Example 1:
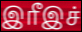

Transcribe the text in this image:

இரீஇச்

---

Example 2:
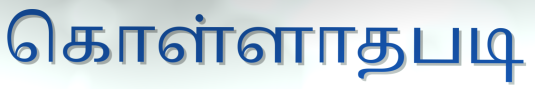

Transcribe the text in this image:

கொள்ளாதபடி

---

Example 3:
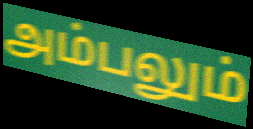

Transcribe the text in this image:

அம்பலும்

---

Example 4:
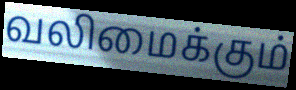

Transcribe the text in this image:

வலிமைக்கும்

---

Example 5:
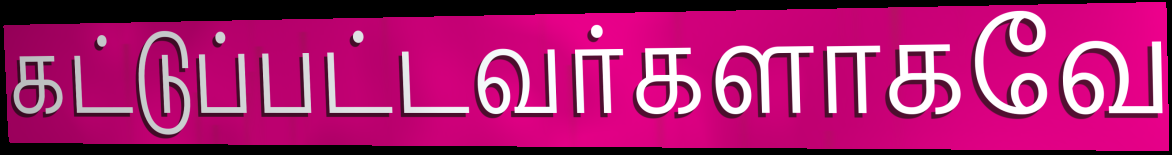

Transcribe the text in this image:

கட்டுப்பட்டவர்களாகவே